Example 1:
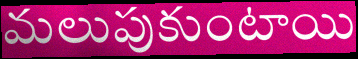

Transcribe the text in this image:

మలుపుకుంటాయి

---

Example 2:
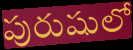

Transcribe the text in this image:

పురుషులో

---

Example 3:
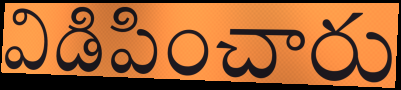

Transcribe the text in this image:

విడిపించారు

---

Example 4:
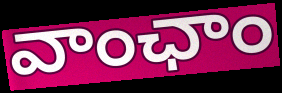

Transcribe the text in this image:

వాంఛాం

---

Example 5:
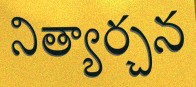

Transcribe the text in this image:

నిత్యార్చన